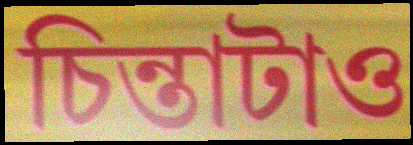
চিন্তাটাও